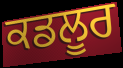
ਕਡਲੂਰ